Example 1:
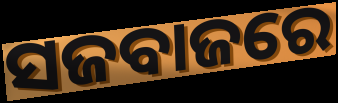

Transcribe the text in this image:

ସଜବାଜରେ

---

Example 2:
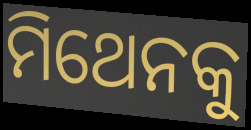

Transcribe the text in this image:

ମିଥେନକୁ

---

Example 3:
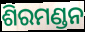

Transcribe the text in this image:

ଶିରମଣ୍ଡନ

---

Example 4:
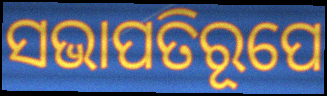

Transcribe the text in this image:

ସଭାପତିରୂପେ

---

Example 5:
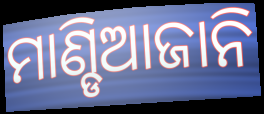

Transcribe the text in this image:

ମାଣ୍ଡିଆଜାନି